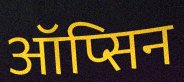
ऑप्सिन